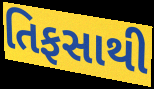
તિફસાથી